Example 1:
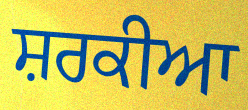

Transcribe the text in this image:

ਸ਼ਰਕੀਆ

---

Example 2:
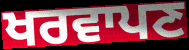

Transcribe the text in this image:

ਖਰਵਾਪਣ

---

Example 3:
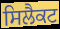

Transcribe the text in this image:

ਸਿਲੈਕਟ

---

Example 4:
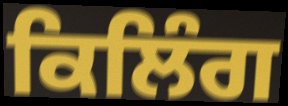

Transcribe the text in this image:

ਕਿਲਿੰਗ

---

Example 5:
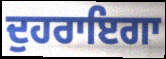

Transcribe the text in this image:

ਦੁਹਰਾਇਗਾ